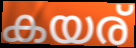
കയര്